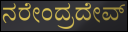
ನರೇಂದ್ರದೇವ್